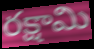
రక్షామి